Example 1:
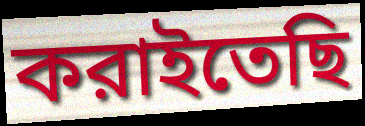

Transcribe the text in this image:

করাইতেছি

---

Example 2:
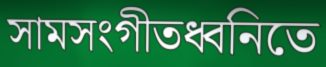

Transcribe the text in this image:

সামসংগীতধ্বনিতে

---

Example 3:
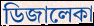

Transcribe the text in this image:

ডিজালেকা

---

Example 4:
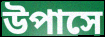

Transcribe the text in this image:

উপাসে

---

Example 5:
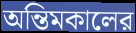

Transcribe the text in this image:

অন্তিমকালের